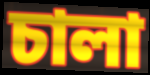
চালা